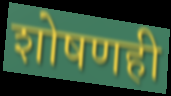
शोषणही